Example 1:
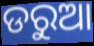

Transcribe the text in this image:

ଡରୁଆ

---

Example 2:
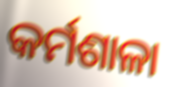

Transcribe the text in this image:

କର୍ମଶାଳା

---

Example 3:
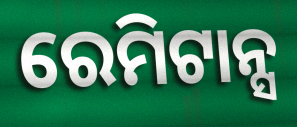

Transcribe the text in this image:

ରେମିଟାନ୍ସ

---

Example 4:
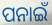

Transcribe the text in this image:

ପନାଇଁ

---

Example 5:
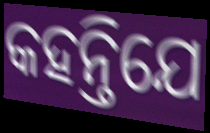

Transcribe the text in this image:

କହନ୍ତିଯେ